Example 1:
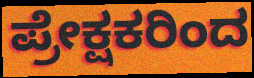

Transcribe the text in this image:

ಪ್ರೇಕ್ಷಕರಿಂದ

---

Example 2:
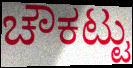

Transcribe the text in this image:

ಚೌಕಟ್ಟು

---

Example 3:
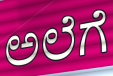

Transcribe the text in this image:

ಅಲೆಗೆ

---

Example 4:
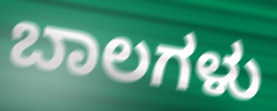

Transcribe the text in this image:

ಬಾಲಗಳು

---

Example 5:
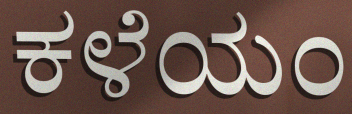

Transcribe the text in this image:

ಕಳೆಯಂ